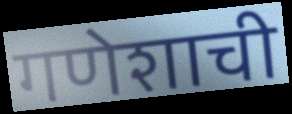
गणेशाची